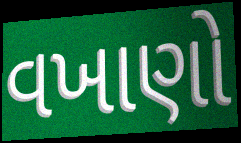
વખાણો